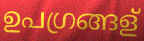
ഉപഗ്രങ്ങള്